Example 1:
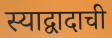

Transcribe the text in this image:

स्याद्वादाची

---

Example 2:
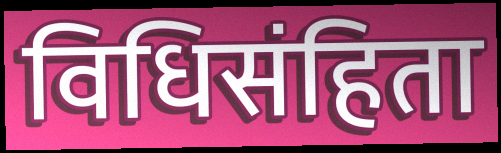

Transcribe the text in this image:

विधिसंहिता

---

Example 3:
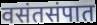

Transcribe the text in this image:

वसंतसंपात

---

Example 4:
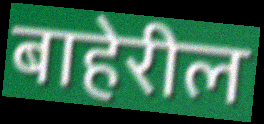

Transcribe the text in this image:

बाहेरील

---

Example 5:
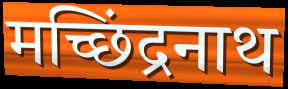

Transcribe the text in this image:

मच्छिंद्रनाथ